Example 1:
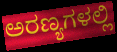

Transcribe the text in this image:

ಅರಣ್ಯಗಳಲ್ಲಿ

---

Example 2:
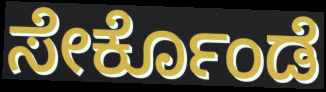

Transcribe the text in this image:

ಸೇರ್ಕೊಂಡೆ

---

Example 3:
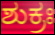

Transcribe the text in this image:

ಶುಕ್ರಃ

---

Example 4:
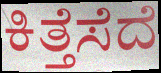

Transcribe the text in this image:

ಕಿತ್ತೆಸೆದೆ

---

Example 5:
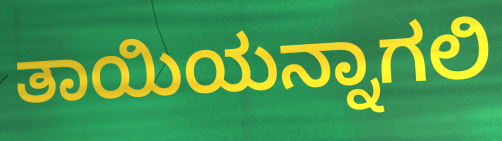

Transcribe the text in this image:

ತಾಯಿಯನ್ನಾಗಲಿ